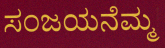
ಸಂಜಯನೆಮ್ಮ